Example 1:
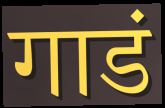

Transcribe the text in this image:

गाडं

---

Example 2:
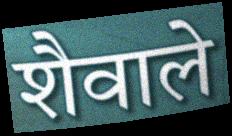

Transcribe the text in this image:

शैवाले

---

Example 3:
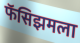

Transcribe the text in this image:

फॅसिझमला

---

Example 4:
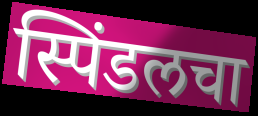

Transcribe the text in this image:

स्पिंडलचा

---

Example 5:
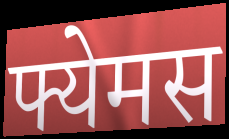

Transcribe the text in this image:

फ्येमस